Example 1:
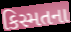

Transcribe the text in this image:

કિસ્મતના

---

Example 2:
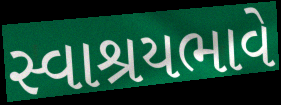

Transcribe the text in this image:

સ્વાશ્રયભાવે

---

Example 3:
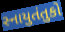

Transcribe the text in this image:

સ્નાયુતંતુકો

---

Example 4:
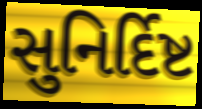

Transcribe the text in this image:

સુનિર્દિષ્ટ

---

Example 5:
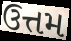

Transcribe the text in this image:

ઉત્તમ